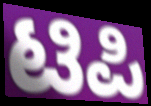
ಟಿಪಿ